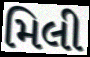
મિલી